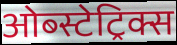
ओब्स्टेट्रिक्स